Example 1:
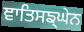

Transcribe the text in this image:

ਞਾਤਿਸਙ੍ਘੇਨ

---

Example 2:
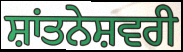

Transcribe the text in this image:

ਸ਼ਾਂਤਨੇਸ਼ਵਰੀ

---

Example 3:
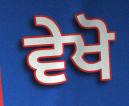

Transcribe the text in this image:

ਵੇਖੋ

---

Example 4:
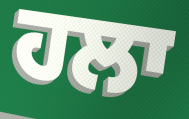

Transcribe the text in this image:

ਹਲਾ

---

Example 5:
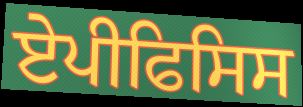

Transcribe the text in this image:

ਏਪੀਫਿਸਿਸ